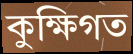
কুক্ষিগত